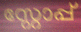
സ്റ്റോപ്പ്